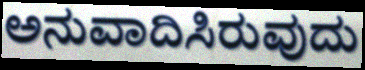
ಅನುವಾದಿಸಿರುವುದು